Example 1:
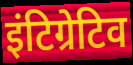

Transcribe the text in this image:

इंटिग्रेटिव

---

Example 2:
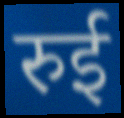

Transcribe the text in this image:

रुई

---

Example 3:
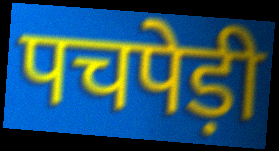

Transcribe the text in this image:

पचपेड़ी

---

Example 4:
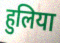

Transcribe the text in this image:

हुलिया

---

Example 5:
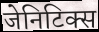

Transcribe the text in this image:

जेनिटिक्स